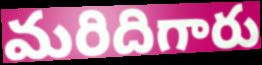
మరిదిగారు